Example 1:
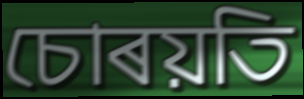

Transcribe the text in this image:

চোৰয়তি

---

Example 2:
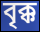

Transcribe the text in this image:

বৃক্ক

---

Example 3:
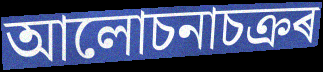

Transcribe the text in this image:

আলোচনাচক্ৰৰ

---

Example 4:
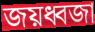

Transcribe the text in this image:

জয়ধ্বজা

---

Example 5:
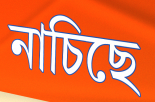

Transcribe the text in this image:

নাচিছে